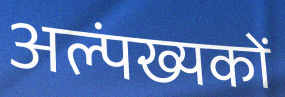
अल्पंख्यकों